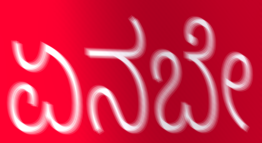
ಏನಬೇ